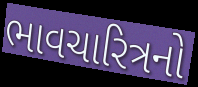
ભાવચારિત્રનો